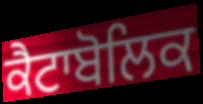
ਕੈਟਾਬੋਲਿਕ